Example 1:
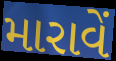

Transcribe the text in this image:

મારાવેં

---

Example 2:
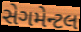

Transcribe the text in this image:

સેગમેન્ટલ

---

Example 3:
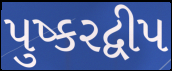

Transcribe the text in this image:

પુષ્કરદ્વીપ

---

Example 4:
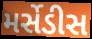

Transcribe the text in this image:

મર્સેડીસ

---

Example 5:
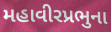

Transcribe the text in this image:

મહાવીરપ્રભુના